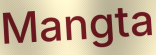
Mangta